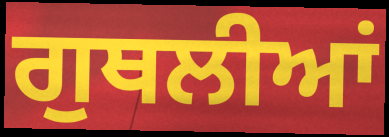
ਗੁਥਲੀਆਂ